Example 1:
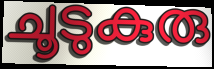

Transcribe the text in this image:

ചൂടുകുരു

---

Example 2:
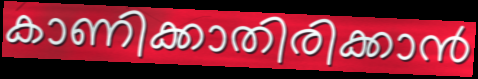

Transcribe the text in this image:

കാണിക്കാതിരിക്കാൻ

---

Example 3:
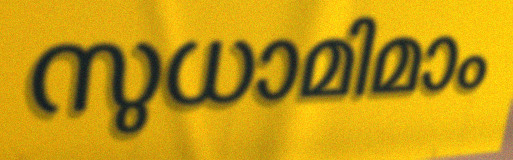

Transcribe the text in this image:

സുധാമിമാം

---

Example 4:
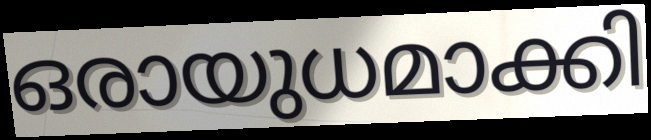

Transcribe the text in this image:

ഒരായുധമാക്കി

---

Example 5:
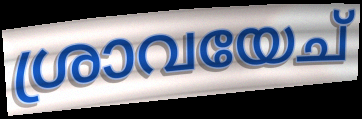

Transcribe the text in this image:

ശ്രാവയേച്